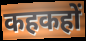
कहकहों